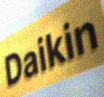
Daikin